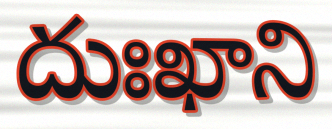
దుఃఖాని